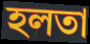
হলতা